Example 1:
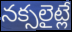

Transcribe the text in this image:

నక్సలైట్లే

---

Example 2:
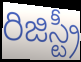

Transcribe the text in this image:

రిజిస్ట్రీ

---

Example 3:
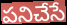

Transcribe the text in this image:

పనిచేసే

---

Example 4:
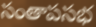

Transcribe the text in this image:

సంతాపసభ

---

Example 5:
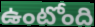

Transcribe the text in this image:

ఉంటోంది